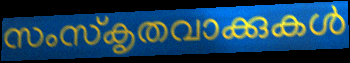
സംസ്കൃതവാക്കുകൾ